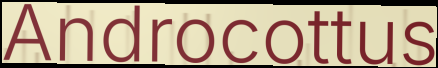
Androcottus